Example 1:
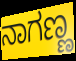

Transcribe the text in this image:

ನಾಗಣ್ಣ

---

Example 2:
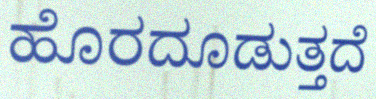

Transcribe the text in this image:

ಹೊರದೂಡುತ್ತದೆ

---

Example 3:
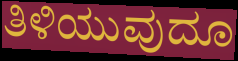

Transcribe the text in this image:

ತಿಳಿಯುವುದೂ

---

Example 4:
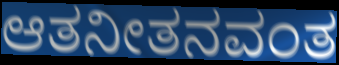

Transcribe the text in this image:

ಆತನೀತನವಂತ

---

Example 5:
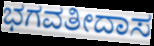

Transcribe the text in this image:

ಭಗವತೀದಾಸ